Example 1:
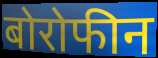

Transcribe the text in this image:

बोरोफीन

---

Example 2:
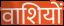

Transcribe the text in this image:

वाशियों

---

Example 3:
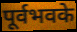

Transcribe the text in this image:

पूर्वभवके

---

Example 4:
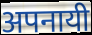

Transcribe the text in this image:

अपनायी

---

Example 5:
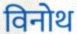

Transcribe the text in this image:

विनोथ